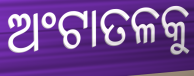
ଅଂଟାତଳକୁ